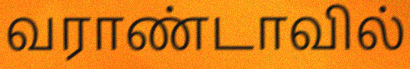
வராண்டாவில்